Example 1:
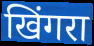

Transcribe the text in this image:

खिंगरा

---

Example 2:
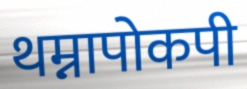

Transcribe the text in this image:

थम्नापोकपी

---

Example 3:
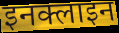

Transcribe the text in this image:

इनक्लाइन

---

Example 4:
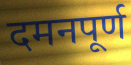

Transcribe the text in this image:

दमनपूर्ण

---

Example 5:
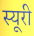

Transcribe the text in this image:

स्यूरी